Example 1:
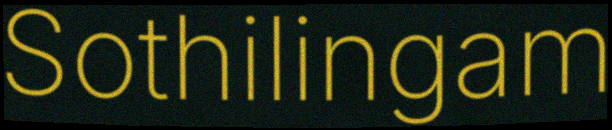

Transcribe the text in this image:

Sothilingam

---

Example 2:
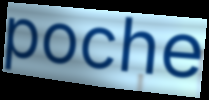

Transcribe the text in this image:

poche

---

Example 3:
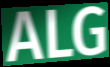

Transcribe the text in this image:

ALG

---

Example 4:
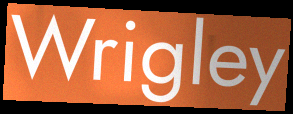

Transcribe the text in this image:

Wrigley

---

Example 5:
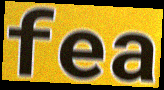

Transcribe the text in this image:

fea